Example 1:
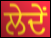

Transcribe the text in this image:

ਲੇਦੇਂ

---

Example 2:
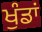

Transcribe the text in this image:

ਖੁੰਡਾਂ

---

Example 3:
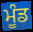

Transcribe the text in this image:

ਮੂੰਡ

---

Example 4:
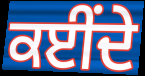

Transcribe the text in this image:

ਕਈਂਦੇ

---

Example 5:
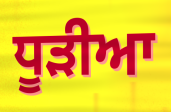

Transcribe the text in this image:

ਧੂੜੀਆ